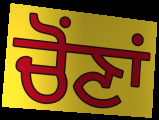
ਚੋਂਣਾਂ